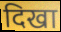
दिखा